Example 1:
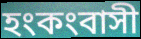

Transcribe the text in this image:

হংকংবাসী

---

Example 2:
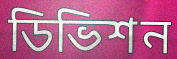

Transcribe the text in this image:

ডিভিশন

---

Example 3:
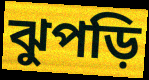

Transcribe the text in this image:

ঝুপড়ি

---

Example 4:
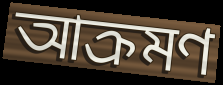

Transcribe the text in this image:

আক্রমণ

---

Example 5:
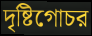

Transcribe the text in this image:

দৃষ্টিগোচর